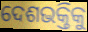
ଦେଶଭକ୍ତିକୁ